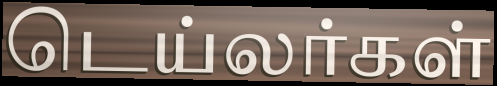
டெய்லர்கள்